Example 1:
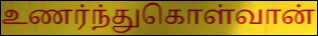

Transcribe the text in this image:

உணர்ந்துகொள்வான்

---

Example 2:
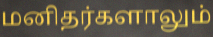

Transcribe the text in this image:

மனிதர்களாலும்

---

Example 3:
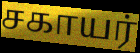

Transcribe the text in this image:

சகாயர்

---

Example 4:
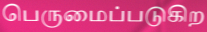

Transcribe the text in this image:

பெருமைப்படுகிற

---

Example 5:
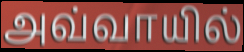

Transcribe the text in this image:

அவ்வாயில்